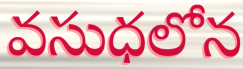
వసుధలోన